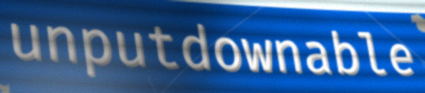
unputdownable